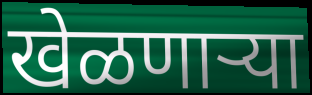
खेळणाऱ्या